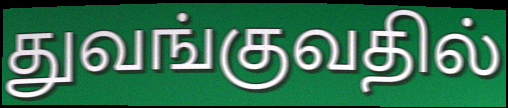
துவங்குவதில்